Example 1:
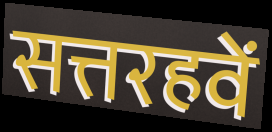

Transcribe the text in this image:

सत्तरहवें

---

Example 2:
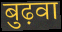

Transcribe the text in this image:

बुढ़वा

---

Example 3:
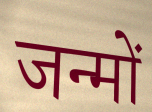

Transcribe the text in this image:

जन्मों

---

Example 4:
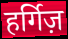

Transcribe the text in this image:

हर्गिज़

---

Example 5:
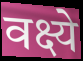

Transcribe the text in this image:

वक्ष्ये